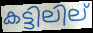
കട്ടിലില്